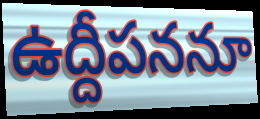
ఉద్దీపననూ